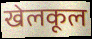
खेलकूल